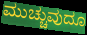
ಮುಚ್ಚುವುದೂ